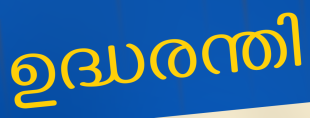
ഉദ്ധരന്തി